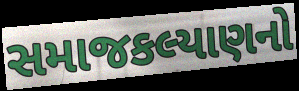
સમાજકલ્યાણનો